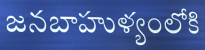
జనబాహుళ్యంలోకి